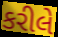
કરીલે